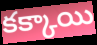
కక్కాయి